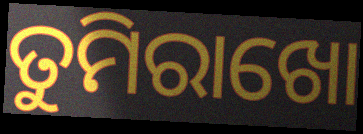
ତୁମିରାଖୋ